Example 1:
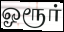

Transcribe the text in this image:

ஓரூர்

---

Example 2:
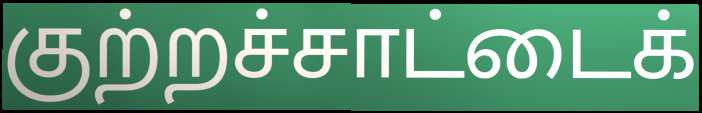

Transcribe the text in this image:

குற்றச்சாட்டைக்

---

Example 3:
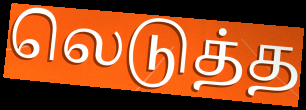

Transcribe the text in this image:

லெடுத்த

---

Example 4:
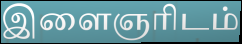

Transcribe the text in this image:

இளைஞரிடம்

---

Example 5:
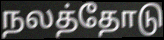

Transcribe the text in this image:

நலத்தோடு